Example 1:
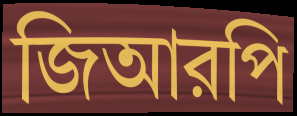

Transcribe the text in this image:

জিআরপি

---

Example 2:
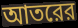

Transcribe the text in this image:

আতরের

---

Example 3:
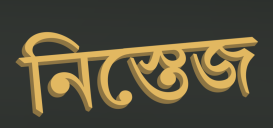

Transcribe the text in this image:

নিস্তেজ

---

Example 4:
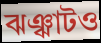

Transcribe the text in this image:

ঝঞ্ঝাটও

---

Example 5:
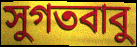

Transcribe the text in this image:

সুগতবাবু